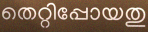
തെറ്റിപ്പോയതു